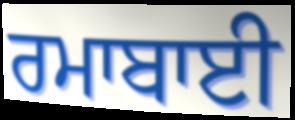
ਰਮਾਬਾਈ